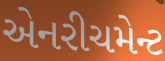
એનરીચમેન્ટ